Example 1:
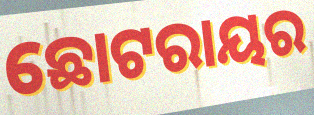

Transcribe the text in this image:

ଛୋଟରାୟର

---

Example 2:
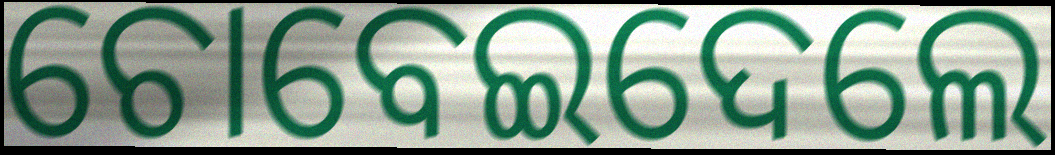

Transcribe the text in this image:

ଚୋବେଇଦେଲେ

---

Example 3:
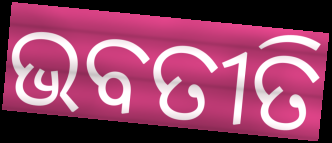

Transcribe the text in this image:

ଭବତୀତି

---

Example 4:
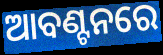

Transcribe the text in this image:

ଆବଣ୍ଟନରେ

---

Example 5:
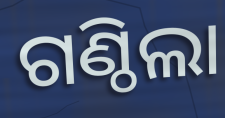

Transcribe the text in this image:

ଗଣ୍ଠିଲା